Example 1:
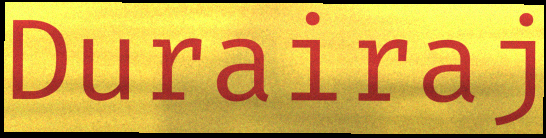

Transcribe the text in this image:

Durairaj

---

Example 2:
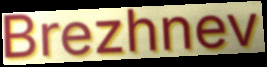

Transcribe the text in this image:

Brezhnev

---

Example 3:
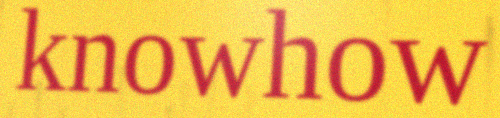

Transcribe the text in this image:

knowhow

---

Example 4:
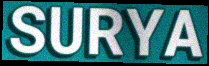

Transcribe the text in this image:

SURYA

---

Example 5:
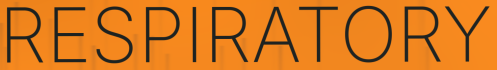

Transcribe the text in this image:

RESPIRATORY